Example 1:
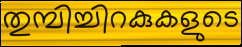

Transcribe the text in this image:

തുമ്പിച്ചിറകുകളുടെ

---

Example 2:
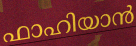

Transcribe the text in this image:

ഫാഹിയാൻ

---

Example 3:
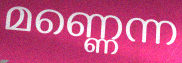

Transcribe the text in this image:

മണ്ണെന്ന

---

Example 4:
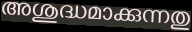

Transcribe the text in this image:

അശുദ്ധമാക്കുന്നതു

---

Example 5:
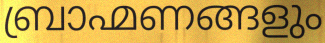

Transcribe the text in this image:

ബ്രാഹ്മണങ്ങളും